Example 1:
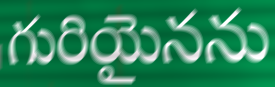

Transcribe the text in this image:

గురియైనను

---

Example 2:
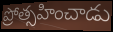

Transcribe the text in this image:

ప్రోత్సహించాడు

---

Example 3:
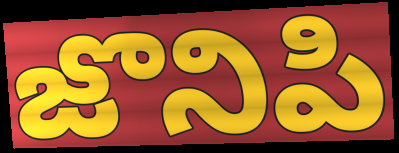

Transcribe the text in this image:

జొనిపి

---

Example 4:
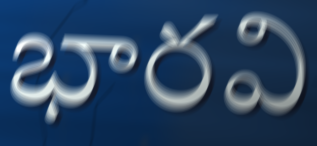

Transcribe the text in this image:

భారవి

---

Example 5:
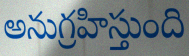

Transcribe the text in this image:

అనుగ్రహిస్తుంది